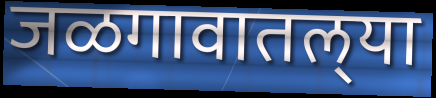
जळगावातल्या